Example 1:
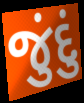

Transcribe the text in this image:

જુંદું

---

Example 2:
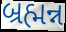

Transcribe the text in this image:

બ્રહ્મન્ન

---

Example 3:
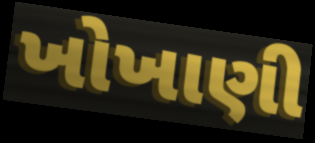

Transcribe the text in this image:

ખોખાણી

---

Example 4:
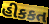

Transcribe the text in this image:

હીકકત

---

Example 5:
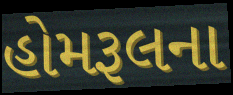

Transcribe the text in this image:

હોમરૂલના